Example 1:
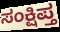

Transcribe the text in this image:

ಸಂಕ್ಷಿಪ್ತ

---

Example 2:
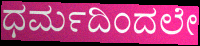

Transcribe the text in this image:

ಧರ್ಮದಿಂದಲೇ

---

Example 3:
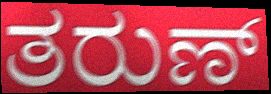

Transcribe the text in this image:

ತರುಣ್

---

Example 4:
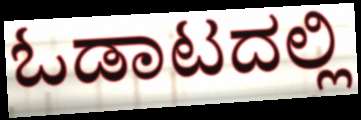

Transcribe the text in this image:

ಓಡಾಟದಲ್ಲಿ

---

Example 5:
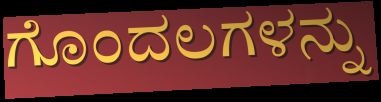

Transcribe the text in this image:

ಗೊಂದಲಗಳನ್ನು